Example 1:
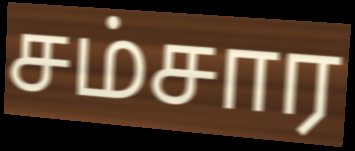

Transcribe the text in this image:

சம்சார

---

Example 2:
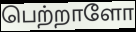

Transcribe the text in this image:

பெற்றாளோ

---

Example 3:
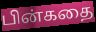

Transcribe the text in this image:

பின்கதை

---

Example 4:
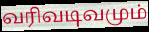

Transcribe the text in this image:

வரிவடிவமும்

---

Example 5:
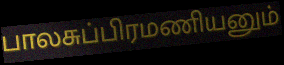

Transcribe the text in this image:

பாலசுப்பிரமணியனும்